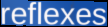
reflexes